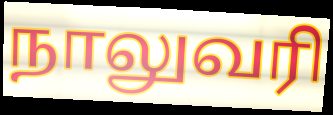
நாலுவரி